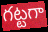
గట్టగా